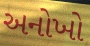
અનોખો